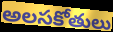
అలసకోతులు